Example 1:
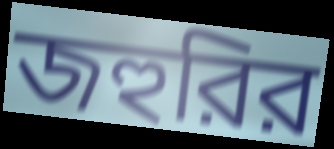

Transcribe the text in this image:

জহুরির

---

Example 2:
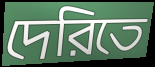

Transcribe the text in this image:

দেরিতে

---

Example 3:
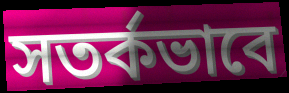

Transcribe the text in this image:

সতর্কভাবে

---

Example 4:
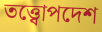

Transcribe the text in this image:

তত্ত্বোপদেশ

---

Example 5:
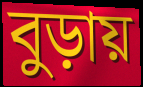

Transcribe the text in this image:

বুড়ায়